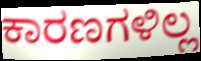
ಕಾರಣಗಳಿಲ್ಲ